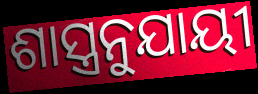
ଶାସ୍ତ୍ରନୁଯାୟୀ